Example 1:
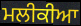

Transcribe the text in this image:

ਮਲੀਕੀਆ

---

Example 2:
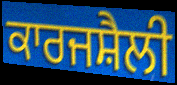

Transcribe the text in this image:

ਕਾਰਜਸ਼ੈਲੀ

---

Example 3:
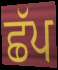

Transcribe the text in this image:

ਛੱਪ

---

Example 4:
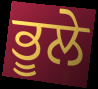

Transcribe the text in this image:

ਭੂਲੇ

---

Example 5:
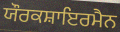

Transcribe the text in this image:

ਯੌਰਕਸ਼ਾਇਰਮੈਨ